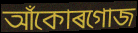
আঁকোৰগোজ